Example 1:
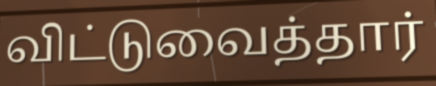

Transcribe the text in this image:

விட்டுவைத்தார்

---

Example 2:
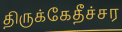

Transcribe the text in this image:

திருக்கேதீச்சர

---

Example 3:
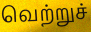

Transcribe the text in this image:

வெற்றுச்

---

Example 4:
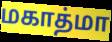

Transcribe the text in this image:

மகாத்மா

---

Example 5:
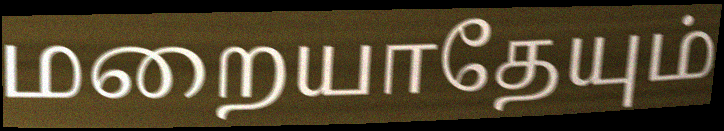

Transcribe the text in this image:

மறையாதேயும்